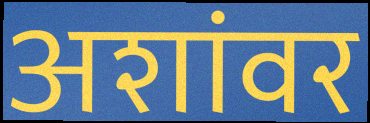
अशांवर